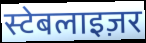
स्टेबलाइज़र